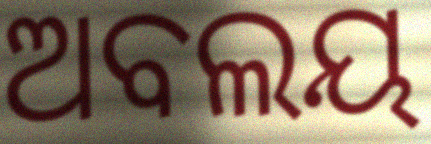
ଅବଲୟ